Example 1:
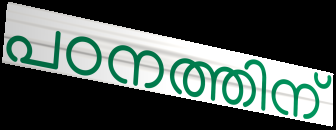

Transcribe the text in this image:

പഠനത്തിന്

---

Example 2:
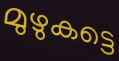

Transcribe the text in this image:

മുഴുകട്ടെ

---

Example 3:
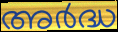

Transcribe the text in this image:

അർദ്ധ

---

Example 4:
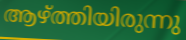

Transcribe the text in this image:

ആഴ്ത്തിയിരുന്നു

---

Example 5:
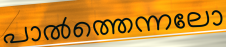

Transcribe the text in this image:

പാൽത്തെന്നലോ